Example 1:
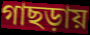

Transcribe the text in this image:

গাছড়ায়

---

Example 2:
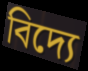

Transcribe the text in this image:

বিদ্যে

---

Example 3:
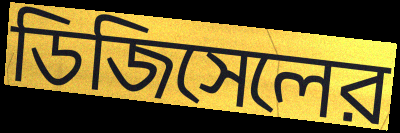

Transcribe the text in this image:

ডিজিসেলের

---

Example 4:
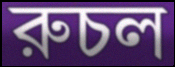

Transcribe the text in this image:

রুচল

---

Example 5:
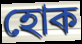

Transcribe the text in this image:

হোক